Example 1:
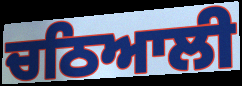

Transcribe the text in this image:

ਚਠਿਆਲੀ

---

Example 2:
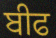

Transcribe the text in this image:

ਬੀਫ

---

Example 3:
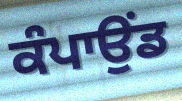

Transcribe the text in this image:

ਕੰਪਾਉਂਡ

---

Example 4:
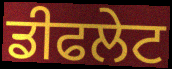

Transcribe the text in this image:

ਡੀਫਲੇਟ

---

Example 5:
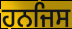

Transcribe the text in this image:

ਹਨਜਿਸ